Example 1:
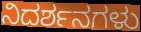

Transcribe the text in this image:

ನಿದರ್ಶನಗಳು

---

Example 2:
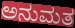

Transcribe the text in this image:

ಅನುಮತ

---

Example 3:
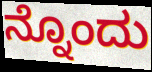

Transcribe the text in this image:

ನ್ನೊಂದು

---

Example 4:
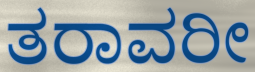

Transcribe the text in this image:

ತರಾವರೀ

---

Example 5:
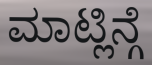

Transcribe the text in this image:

ಮಾಟ್ಲಿನ್ಗೆ